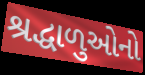
શ્રદ્ધાળુઓનો